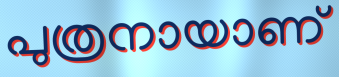
പുത്രനായാണ്